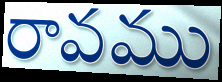
రావము